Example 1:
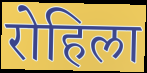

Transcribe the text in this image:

रोहिला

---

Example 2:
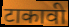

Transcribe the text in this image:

टाकावी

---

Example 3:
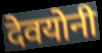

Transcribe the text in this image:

देवयोनी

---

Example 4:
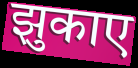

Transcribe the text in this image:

झुकाए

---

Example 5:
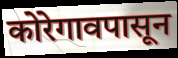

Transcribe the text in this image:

कोरेगावपासून